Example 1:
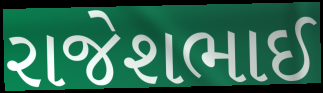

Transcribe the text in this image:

રાજેશભાઈ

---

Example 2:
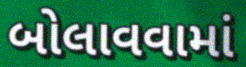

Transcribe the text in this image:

બોલાવવામાં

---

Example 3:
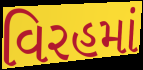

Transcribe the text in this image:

વિરહમાં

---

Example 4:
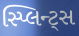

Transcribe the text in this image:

સ્પ્લિન્ટ્સ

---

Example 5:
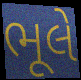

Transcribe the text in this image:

ભૂલે